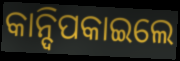
କାନ୍ଦିପକାଇଲେ